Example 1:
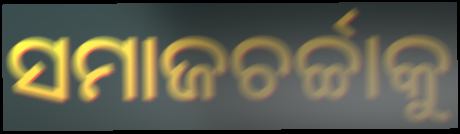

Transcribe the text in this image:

ସମାଜଚର୍ଚ୍ଚାକୁ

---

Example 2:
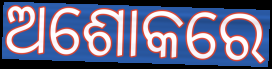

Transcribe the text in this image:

ଅଶୋକରେ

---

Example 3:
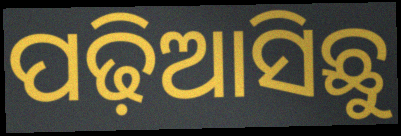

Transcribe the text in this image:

ପଢ଼ିଆସିଛୁ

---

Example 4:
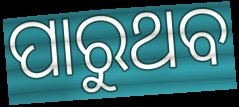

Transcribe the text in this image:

ପାରୁଥବ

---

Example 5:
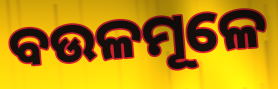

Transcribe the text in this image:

ବଉଳମୂଳେ